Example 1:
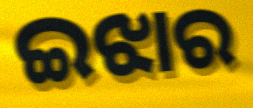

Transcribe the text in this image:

ଇଝାର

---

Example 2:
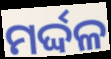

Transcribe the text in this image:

ମର୍ଦ୍ଦଳ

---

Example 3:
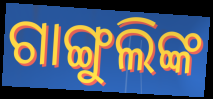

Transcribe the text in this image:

ଗାଙ୍ଗୁଲିଙ୍କ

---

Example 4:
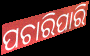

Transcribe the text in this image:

ପଚାରିପାରି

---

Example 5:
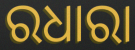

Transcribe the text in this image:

ରଧାରା